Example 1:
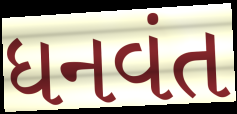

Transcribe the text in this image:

ધનવંત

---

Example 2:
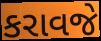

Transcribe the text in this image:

કરાવજે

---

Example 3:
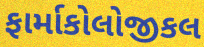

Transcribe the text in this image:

ફાર્માકોલોજીકલ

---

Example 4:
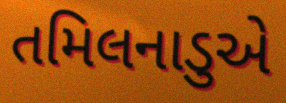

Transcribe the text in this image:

તમિલનાડુએ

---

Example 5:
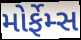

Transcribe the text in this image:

મોર્ફેમ્સ